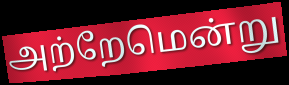
அற்றேமென்று